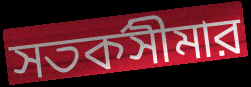
সতর্কসীমার